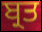
ਬ੍ਰਤ